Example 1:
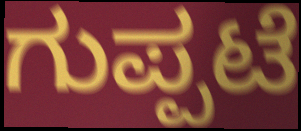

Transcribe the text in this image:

ಗುಪ್ಪಟೆ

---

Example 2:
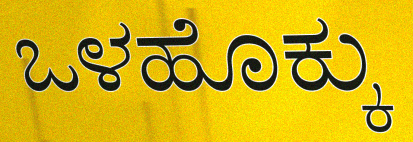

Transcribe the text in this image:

ಒಳಹೊಕ್ಕು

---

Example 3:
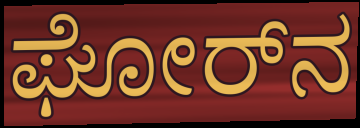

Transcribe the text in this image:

ಘೋರ್‌ನ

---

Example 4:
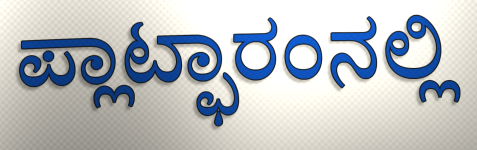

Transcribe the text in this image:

ಪ್ಲಾಟ್ಫಾರಂನಲ್ಲಿ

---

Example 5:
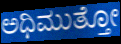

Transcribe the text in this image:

ಅಧಿಮುತ್ತೋ